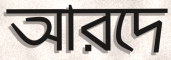
আরদে